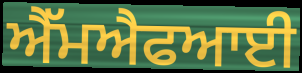
ਐੱਮਐਫਆਈ